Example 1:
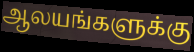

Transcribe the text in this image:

ஆலயங்களுக்கு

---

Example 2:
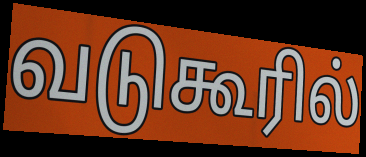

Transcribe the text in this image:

வடுகூரில்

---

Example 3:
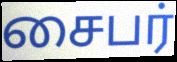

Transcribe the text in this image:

சைபர்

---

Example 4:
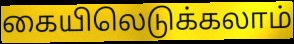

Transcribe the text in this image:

கையிலெடுக்கலாம்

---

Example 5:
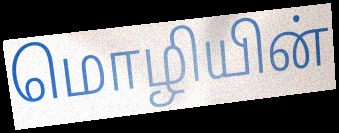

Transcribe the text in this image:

மொழியின்